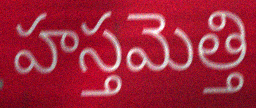
హస్తమెత్తి